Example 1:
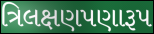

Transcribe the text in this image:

ત્રિલક્ષણપણારૂપ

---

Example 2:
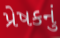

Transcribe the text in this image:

પ્રેષકનું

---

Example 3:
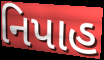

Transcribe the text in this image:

નિપાહ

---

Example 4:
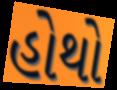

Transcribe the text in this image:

હોથો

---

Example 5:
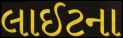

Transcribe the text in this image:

લાઈટના